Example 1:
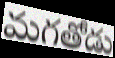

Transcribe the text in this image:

మగతోడు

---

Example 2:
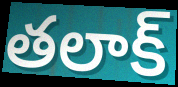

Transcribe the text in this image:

తలాక్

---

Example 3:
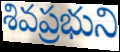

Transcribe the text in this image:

శివప్రభుని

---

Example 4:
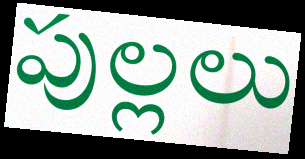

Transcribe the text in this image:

పుల్లలు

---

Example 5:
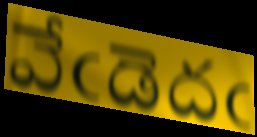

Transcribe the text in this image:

వేఁడెదఁ